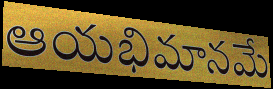
ఆయభిమానమే